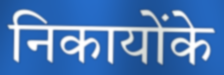
निकायोंके